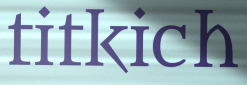
titkich